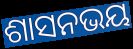
ଶାସନଭୟ